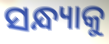
ସନ୍ଧ୍ୟାକୁ